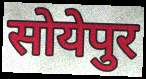
सोयेपुर